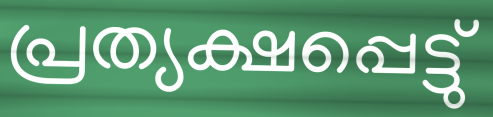
പ്രത്യക്ഷപ്പെട്ടു്